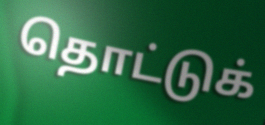
தொட்டுக்